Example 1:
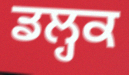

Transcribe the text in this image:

ਡਲ੍ਹਕ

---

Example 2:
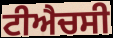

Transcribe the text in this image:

ਟੀਐਚਸੀ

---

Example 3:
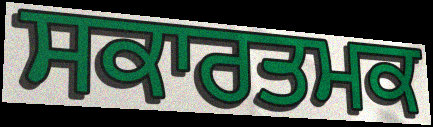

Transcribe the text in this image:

ਸਕਾਰਤਮਕ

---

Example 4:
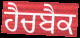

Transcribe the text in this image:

ਹੈਚਬੈਕ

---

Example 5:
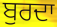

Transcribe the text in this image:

ਬੁਰਦਾ